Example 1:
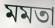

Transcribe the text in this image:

মমতা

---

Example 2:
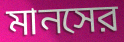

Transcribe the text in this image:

মানসের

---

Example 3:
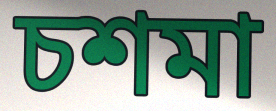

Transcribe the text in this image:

চশমা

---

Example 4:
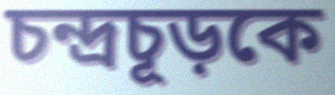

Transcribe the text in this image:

চন্দ্রচূড়কে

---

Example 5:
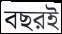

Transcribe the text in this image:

বছরই